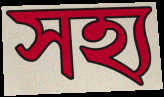
সহ্য